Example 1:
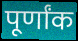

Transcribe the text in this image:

पूर्णांक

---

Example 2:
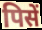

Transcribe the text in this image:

पिसें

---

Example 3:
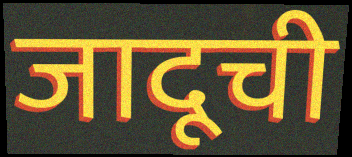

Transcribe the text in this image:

जादूची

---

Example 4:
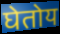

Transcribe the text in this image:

घेतोय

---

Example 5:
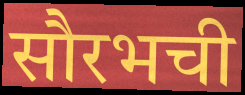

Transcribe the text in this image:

सौरभची